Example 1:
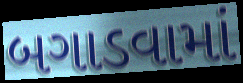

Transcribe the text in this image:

બગાડવામાં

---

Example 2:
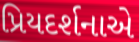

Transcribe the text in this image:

પ્રિયદર્શનાએ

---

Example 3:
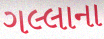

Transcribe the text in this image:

ગલ્લાના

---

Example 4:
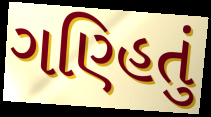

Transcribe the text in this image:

ગણ્હિતું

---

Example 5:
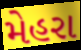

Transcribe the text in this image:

મેહરા